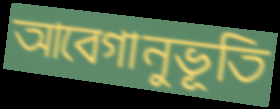
আবেগানুভূতি